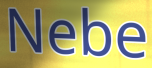
Nebe